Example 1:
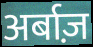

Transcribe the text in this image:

अर्बाज़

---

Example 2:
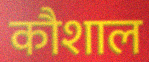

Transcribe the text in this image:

कौशाल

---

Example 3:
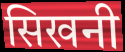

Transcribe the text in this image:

सिखनी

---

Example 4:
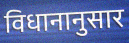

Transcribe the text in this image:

विधानानुसार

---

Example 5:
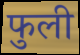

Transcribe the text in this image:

फुली